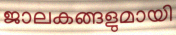
ജാലകങ്ങളുമായി